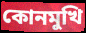
কোনমুখি